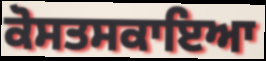
ਕੋਸਤਸਕਾਇਆ